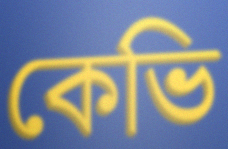
কেভি